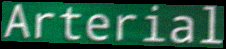
Arterial